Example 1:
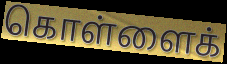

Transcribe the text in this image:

கொள்ளைக்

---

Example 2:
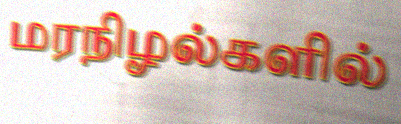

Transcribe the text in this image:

மரநிழல்களில்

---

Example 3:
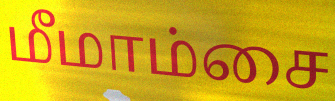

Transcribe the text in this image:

மீமாம்சை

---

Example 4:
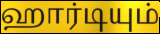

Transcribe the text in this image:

ஹார்டியும்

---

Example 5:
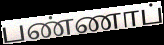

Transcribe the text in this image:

பண்ணாப்